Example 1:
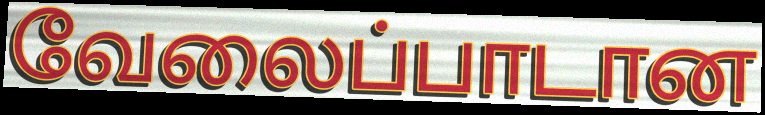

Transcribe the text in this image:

வேலைப்பாடான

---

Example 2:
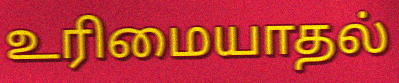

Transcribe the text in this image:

உரிமையாதல்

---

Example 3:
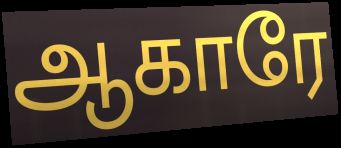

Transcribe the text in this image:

ஆகாரே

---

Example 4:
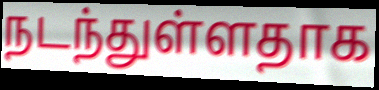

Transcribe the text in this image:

நடந்துள்ளதாக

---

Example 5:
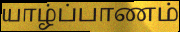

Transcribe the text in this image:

யாழ்ப்பாணம்